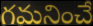
గమనించే